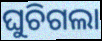
ଘୁଚିଗଲା